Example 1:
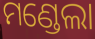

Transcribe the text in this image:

ମଣ୍ଡେଲା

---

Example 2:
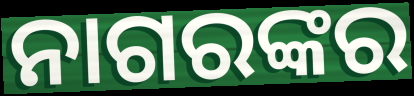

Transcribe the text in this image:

ନାଗରଙ୍କର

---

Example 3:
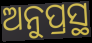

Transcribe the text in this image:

ଅନୁପ୍ରସ୍ଥ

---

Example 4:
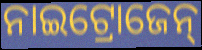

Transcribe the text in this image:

ନାଇଟ୍ରୋଜେନ୍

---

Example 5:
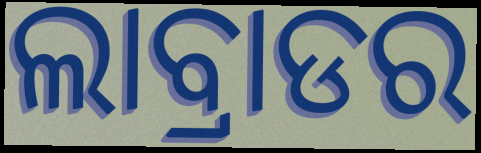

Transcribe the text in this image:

ଲାବ୍ରାଡର